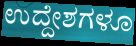
ಉದ್ದೇಶಗಳೂ